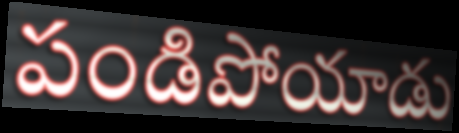
పండిపోయాడు